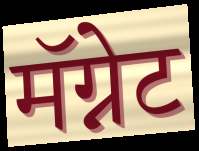
मॅग्नेट